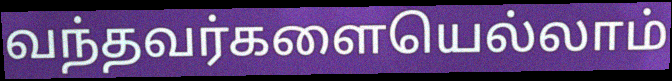
வந்தவர்களையெல்லாம்